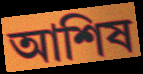
আশিষ